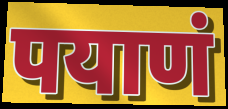
पयाणं